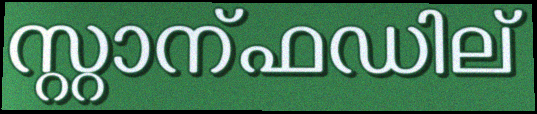
സ്റ്റാന്ഫഡില്